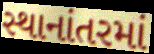
સ્થાનાંતરમાં